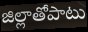
జిల్లాతోపాటు